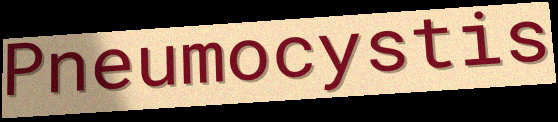
Pneumocystis